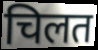
चिलत